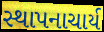
સ્થાપનાચાર્ય